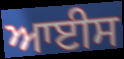
ਆਈਸ